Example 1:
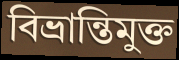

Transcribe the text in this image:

বিভ্রান্তিমুক্ত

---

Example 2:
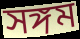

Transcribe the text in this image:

সঙ্গম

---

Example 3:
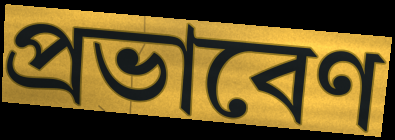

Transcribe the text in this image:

প্রভাবেণ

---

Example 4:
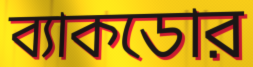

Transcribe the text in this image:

ব্যাকডোর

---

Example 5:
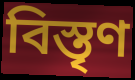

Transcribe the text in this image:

বিস্তৃণ